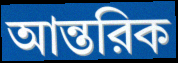
আন্তরিক